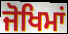
ਜੋਖਿਮਾਂ